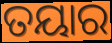
ତୟାର